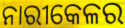
ନାରୀକେଳର